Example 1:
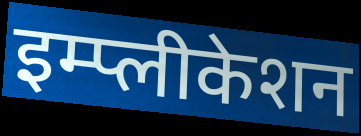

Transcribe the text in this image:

इम्प्लीकेशन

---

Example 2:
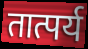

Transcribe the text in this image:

तात्पर्य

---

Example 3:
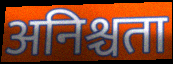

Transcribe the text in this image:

अनिश्चता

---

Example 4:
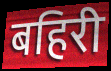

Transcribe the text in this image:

बहिरी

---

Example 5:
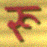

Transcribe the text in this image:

रू